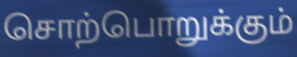
சொற்பொறுக்கும்